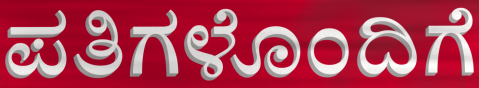
ಪತಿಗಳೊಂದಿಗೆ